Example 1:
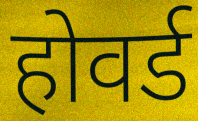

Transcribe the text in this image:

होवर्ड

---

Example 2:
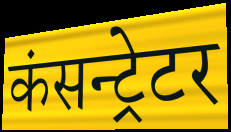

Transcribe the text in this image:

कंसन्ट्रेटर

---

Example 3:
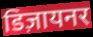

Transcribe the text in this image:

डिज़ायनर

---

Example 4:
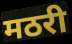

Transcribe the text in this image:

मठरी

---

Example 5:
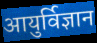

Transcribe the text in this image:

आयुर्विज्ञान